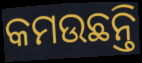
କମଉଛନ୍ତି